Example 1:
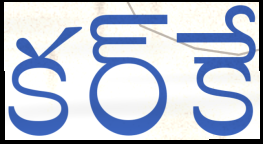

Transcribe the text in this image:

కర్‌కే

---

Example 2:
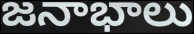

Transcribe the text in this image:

జనాభాలు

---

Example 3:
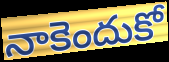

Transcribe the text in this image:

నాకెందుకో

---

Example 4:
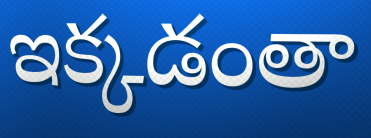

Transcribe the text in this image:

ఇక్కడంతా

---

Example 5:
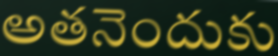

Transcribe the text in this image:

అతనెందుకు